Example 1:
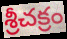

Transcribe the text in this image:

శ్రీచక్రం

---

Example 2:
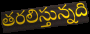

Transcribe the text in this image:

తరలిస్తున్నది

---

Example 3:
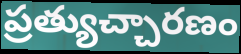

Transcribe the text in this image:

ప్రత్యుచ్చారణం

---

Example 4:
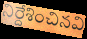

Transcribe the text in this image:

నిర్దేశించినవి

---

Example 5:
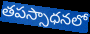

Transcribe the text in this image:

తపస్సాధనలో